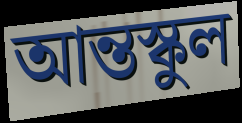
আন্তস্কুল